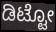
ಡಿಟ್ಟೋ